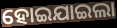
ହୋଇଯାଇଲା